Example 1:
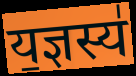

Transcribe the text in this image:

य॒ज्ञस्य॑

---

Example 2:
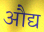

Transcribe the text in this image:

औद्य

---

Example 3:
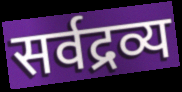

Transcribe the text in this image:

सर्वद्रव्य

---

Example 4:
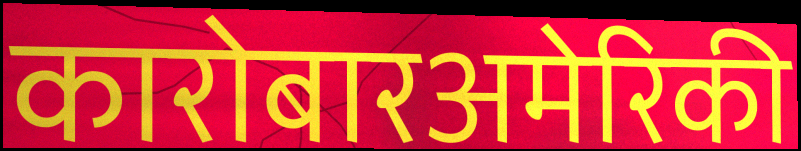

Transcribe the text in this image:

कारोबारअमेरिकी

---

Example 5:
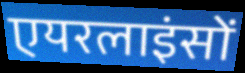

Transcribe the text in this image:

एयरलाइंसों